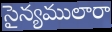
సైన్యములారా